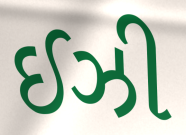
ઈઝી